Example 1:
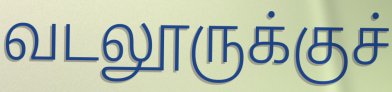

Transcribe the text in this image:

வடலூருக்குச்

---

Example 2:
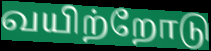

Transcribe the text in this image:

வயிற்றோடு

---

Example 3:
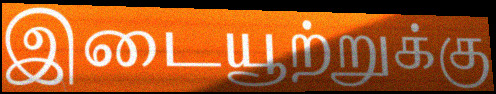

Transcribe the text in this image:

இடையூற்றுக்கு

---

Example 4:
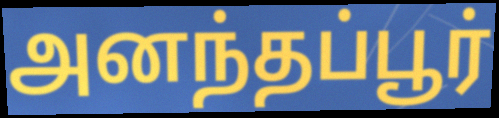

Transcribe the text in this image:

அனந்தப்பூர்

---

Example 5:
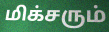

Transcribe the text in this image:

மிக்சரும்